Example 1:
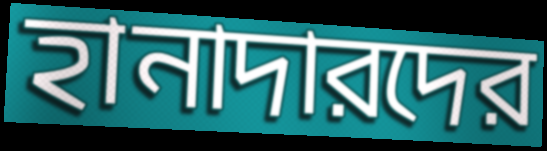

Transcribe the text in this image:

হানাদারদের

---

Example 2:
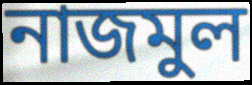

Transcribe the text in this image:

নাজমুল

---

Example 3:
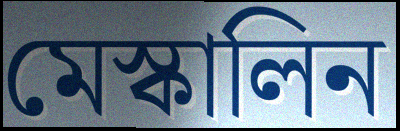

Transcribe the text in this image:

মেস্কালিন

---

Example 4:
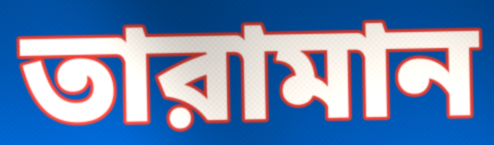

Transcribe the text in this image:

তারামান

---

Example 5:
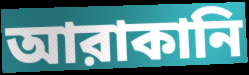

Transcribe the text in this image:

আরাকানি